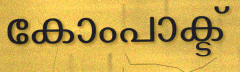
കോംപാക്ട്